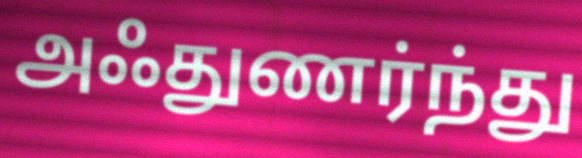
அஃதுணர்ந்து